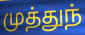
முத்துந்